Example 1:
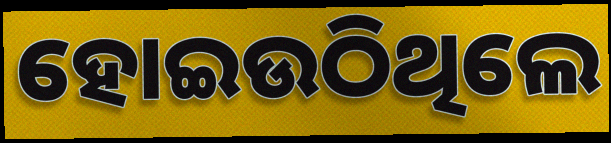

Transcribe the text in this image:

ହୋଇଉଠିଥିଲେ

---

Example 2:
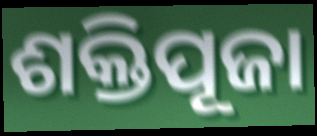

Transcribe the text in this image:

ଶକ୍ତିପୂଜା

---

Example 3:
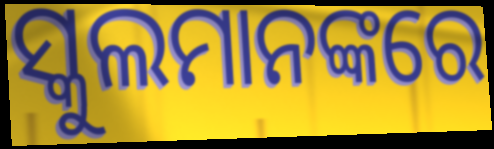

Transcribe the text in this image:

ସ୍କୁଲମାନଙ୍କରେ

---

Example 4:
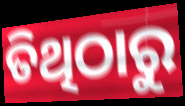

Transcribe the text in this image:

ତିଥିଠାରୁ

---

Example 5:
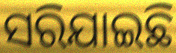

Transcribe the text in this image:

ସରିଯାଇଛି